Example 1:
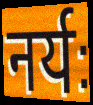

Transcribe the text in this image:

नर्यः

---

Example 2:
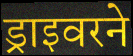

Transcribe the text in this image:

ड्राइवरने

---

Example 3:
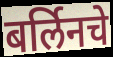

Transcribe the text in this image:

बर्लिनचे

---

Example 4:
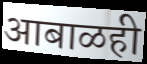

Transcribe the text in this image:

आबाळही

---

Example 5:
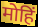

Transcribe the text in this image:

मोहिं